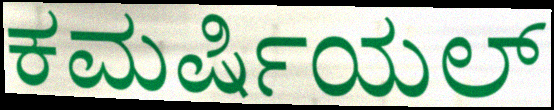
ಕಮರ್ಷಿಯಲ್